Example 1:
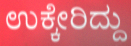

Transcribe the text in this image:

ಉಕ್ಕೇರಿದ್ದು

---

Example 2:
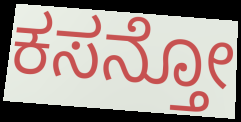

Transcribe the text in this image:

ಕಸನ್ತೋ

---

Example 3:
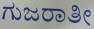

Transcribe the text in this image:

ಗುಜರಾತೀ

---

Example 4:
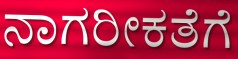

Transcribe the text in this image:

ನಾಗರೀಕತೆಗೆ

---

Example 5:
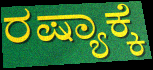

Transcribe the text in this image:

ರಷ್ಯಾಕ್ಕೆ